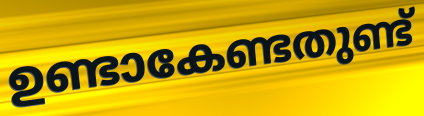
ഉണ്ടാകേണ്ടതുണ്ട്